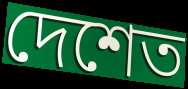
দেশেত